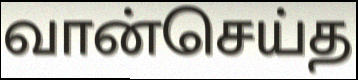
வான்செய்த